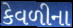
કેવળીના